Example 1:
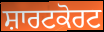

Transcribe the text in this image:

ਸ਼ਾਰਟਕੋਰਟ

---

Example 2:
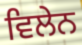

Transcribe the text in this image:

ਵਿਲੇਨ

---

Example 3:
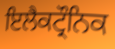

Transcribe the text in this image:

ਇਲੈਕਟ੍ਰੌਨਿਕ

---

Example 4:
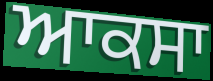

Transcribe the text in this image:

ਆਕਸਾ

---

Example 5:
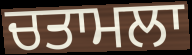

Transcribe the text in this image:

ਚਤਾਮਲਾ